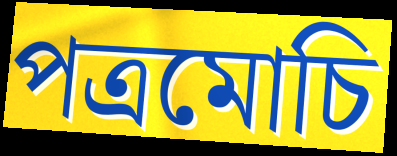
পত্রমোচি